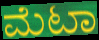
ಮೆಟಾ